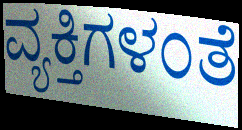
ವ್ಯಕ್ತಿಗಳಂತೆ